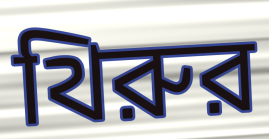
থিরুর